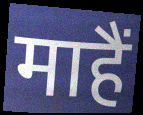
माहैं